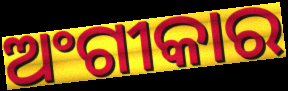
ଅଂଗୀକାର